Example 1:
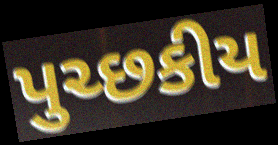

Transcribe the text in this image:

પુચ્છકીય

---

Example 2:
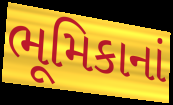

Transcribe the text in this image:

ભૂમિકાનાં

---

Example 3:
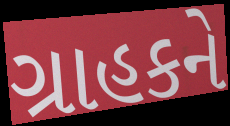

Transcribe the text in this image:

ગ્રાહકને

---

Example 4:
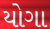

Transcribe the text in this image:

યોગા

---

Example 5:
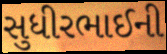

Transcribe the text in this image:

સુધીરભાઈની